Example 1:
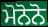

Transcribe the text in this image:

ਮੋਨੋਨੋ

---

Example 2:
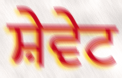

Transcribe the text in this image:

ਸ਼ੇਵੇਟ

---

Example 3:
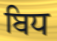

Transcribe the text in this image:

ਬਿਧ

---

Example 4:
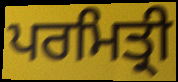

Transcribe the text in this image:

ਪਰਮਿਤ੍ਰੀ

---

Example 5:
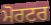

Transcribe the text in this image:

ਮੋਰਟਰ